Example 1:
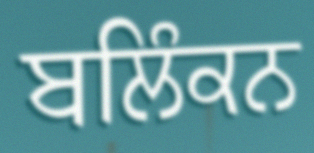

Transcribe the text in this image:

ਬਲਿੰਕਨ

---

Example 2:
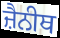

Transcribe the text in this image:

ਜ਼ੈਨੀਥ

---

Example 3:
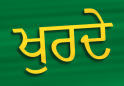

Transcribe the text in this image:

ਖੁਰਦੇ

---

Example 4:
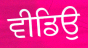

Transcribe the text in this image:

ਵੀਡਿਉ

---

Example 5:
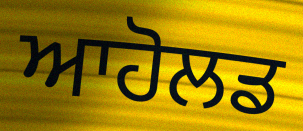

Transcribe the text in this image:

ਆਹੋਲਡ